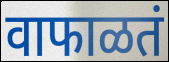
वाफाळतं